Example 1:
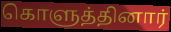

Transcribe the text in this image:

கொளுத்தினார்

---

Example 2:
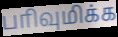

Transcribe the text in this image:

பரிவுமிக்க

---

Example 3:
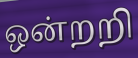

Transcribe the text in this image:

ஒன்றறி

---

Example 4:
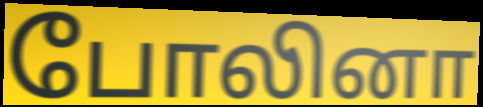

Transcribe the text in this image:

போலினா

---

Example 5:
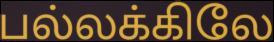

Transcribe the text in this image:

பல்லக்கிலே